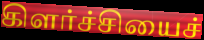
கிளர்ச்சியைச்